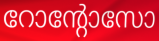
റോന്റോസോ